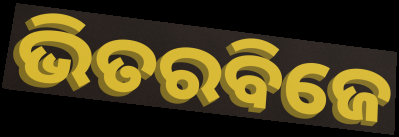
ଭିତରବିଜେ